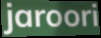
jaroori